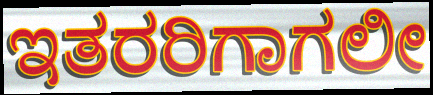
ಇತರರಿಗಾಗಲೀ